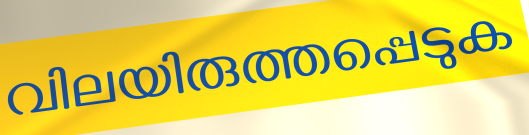
വിലയിരുത്തപ്പെടുക